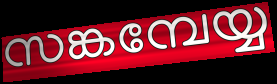
സങ്കമ്പേയ്യ